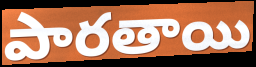
పారతాయి